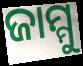
ଜାମ୍ମୁ